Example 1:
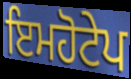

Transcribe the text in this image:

ਇਮਹੋਟੇਪ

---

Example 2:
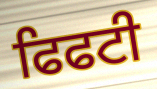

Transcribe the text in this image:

ਫਿਫਟੀ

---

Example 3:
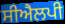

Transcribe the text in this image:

ਸੀਐਲਪੀ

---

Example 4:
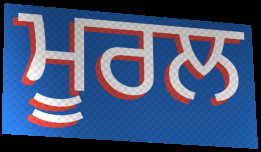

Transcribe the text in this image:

ਮੂਰਲ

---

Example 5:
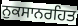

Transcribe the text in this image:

ਨੁਕਸਾਨਰਹਿਤ